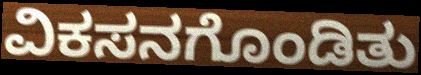
ವಿಕಸನಗೊಂಡಿತು